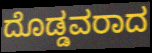
ದೊಡ್ಡವರಾದ